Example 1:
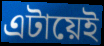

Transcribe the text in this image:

এটায়েই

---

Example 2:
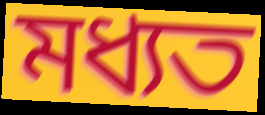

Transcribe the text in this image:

মধ্যত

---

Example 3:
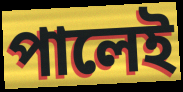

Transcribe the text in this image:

পালেই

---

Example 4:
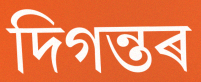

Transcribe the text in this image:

দিগন্তৰ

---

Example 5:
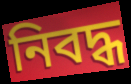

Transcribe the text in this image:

নিবদ্ধ